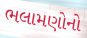
ભલામણોનો